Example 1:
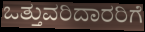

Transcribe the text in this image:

ಒತ್ತುವರಿದಾರರಿಗೆ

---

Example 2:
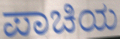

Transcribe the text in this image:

ಪಾಚಿಯ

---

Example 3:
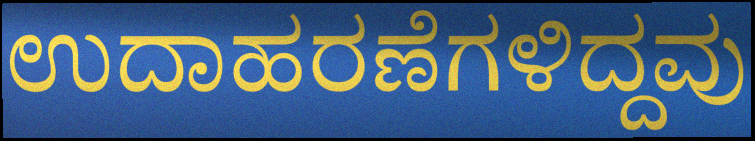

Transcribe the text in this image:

ಉದಾಹರಣೆಗಳಿದ್ದವು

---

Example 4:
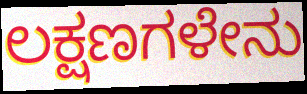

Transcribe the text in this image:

ಲಕ್ಷಣಗಳೇನು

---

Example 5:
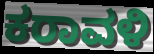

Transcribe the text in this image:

ಕರಾವಳಿ